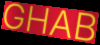
GHAB